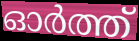
ഓർത്ത്